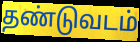
தண்டுவடம்